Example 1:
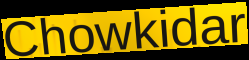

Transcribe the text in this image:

Chowkidar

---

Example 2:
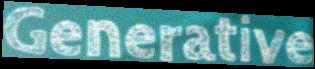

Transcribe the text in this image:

Generative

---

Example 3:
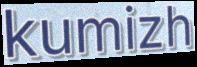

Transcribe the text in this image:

kumizh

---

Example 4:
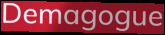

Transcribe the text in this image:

Demagogue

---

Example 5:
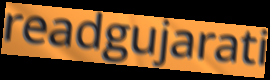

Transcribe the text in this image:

readgujarati